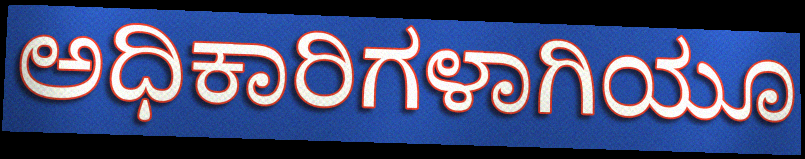
ಅಧಿಕಾರಿಗಳಾಗಿಯೂ